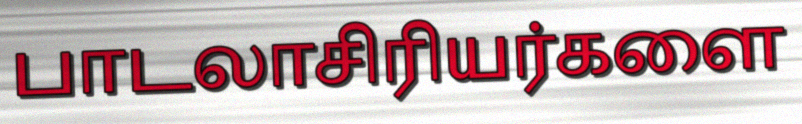
பாடலாசிரியர்களை